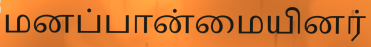
மனப்பான்மையினர்